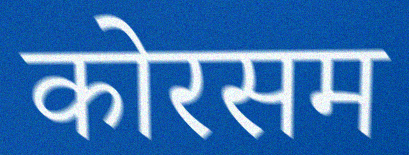
कोरसम